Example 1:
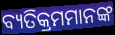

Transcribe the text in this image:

ବ୍ୟତିକ୍ରମମାନଙ୍କ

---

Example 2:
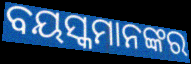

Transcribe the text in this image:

ବୟସ୍କମାନଙ୍କର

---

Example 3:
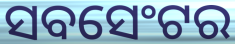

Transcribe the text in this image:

ସବସେଂଟର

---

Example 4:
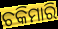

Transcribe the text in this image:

ଚକିମାରି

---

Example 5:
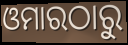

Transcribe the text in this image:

ଓମାରଠାରୁ